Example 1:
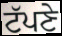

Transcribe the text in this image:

ਟੱਪਣੇ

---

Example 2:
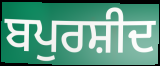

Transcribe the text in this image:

ਬਪੁਰਸ਼ੀਦ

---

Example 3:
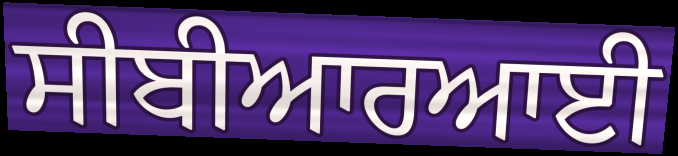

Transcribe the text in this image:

ਸੀਬੀਆਰਆਈ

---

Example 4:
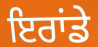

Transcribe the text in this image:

ਇਰਾਂਡੇ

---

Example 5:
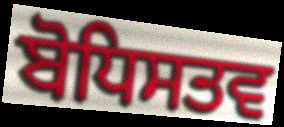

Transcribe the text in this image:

ਬੋਧਿਸਤਵ